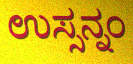
ಉಸ್ಸನ್ನಂ